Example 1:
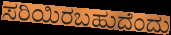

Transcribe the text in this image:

ಸರಿಯಿರಬಹುದೆಂದು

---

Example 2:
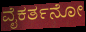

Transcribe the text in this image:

ವೈಕರ್ತನೋ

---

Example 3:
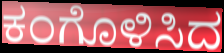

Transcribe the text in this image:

ಕಂಗೊಳಿಸಿದ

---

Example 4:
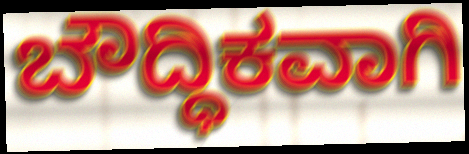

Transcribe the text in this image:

ಬೌದ್ಧಿಕವಾಗಿ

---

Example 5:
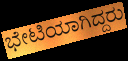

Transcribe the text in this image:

ಭೇಟಿಯಾಗಿದ್ದರು